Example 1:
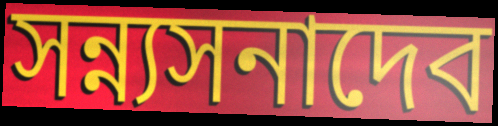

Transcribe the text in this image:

সন্ন্যসনাদেব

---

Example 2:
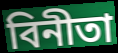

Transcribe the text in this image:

বিনীতা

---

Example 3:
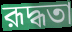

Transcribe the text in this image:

রূদ্ধতা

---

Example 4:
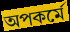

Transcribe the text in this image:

অপকর্মে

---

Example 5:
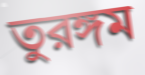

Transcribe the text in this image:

তুরঙ্গম